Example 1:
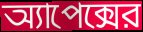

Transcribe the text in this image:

অ্যাপেক্সের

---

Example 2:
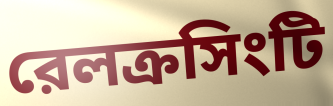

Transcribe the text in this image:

রেলক্রসিংটি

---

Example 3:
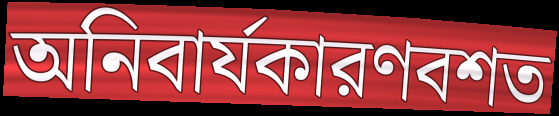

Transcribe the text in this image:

অনিবার্যকারণবশত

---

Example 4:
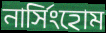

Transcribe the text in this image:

নার্সিংহোম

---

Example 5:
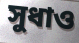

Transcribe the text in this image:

সুধাও